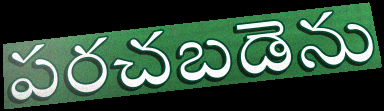
పరచబడెను